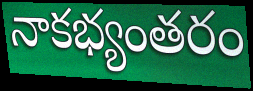
నాకభ్యంతరం